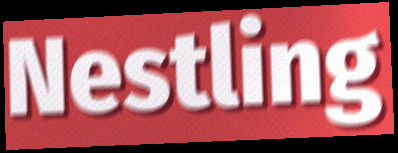
Nestling